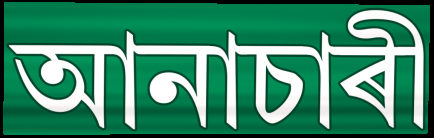
আনাচাৰী